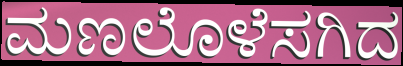
ಮಣಲೊಳೆಸಗಿದ